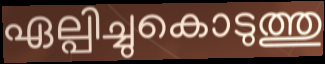
ഏല്പിച്ചുകൊടുത്തു